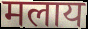
मलाय